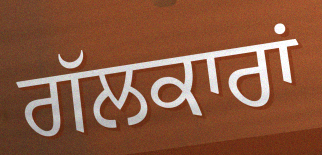
ਗੱਲਕਾਰਾਂ